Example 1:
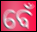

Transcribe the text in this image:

ବେଁ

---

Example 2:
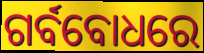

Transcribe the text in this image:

ଗର୍ବବୋଧରେ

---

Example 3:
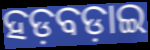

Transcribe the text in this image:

ହଡ଼ବଡ଼ାଇ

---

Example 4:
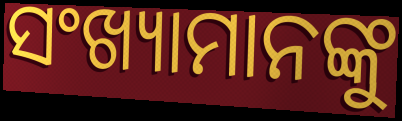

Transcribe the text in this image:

ସଂଖ୍ୟାମାନଙ୍କୁ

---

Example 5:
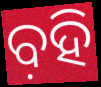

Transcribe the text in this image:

ବ଼ହି